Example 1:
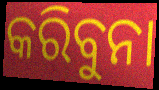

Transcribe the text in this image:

କରିବୁନା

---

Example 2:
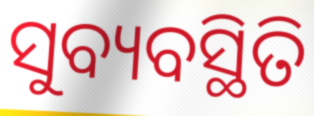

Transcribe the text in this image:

ସୁବ୍ୟବସ୍ଥିତି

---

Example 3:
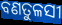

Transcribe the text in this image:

ବଣତୁଳସୀ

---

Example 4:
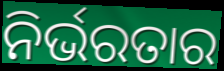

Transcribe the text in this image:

ନିର୍ଭରତାର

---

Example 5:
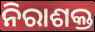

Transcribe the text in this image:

ନିରାଶକ୍ତ